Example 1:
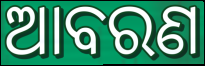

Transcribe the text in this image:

ଆବରଣ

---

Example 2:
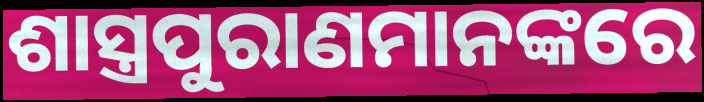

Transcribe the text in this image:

ଶାସ୍ତ୍ରପୁରାଣମାନଙ୍କରେ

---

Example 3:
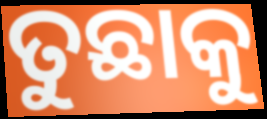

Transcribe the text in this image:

ତୁଛାକୁ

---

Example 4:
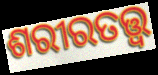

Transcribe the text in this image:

ଶରୀରତତ୍ତ୍ୱ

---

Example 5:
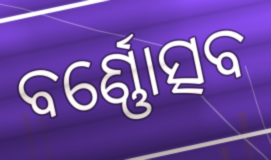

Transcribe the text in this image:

ବର୍ଣ୍ଣୋତ୍ସବ